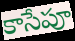
కాసేపూ